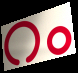
റം